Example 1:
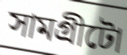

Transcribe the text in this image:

সামগ্ৰীটো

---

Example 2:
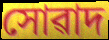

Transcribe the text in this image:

সোৱাদ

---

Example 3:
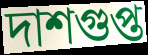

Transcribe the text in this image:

দাশগুপ্ত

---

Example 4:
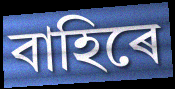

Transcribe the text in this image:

বাহিৰে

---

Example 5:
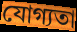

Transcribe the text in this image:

যোগ্যতা